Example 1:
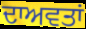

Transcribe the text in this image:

ਦਾਅਵਤਾਂ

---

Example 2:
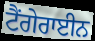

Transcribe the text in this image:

ਟੈਂਗੇਰਾਈਨ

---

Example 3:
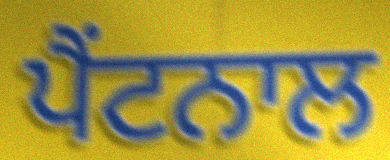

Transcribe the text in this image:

ਪੈਂਟਨਾਲ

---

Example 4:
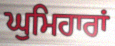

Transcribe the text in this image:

ਘੁਮਿਹਾਰਾਂ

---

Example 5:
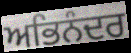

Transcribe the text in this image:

ਅਭਿਨੰਦਰ